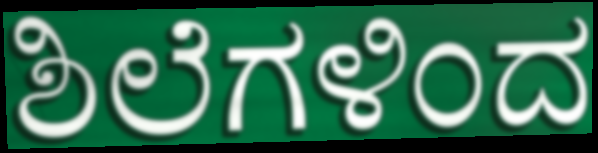
ಶಿಲೆಗಳಿಂದ